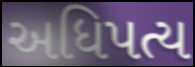
અધિપત્ય